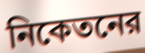
নিকেতনের